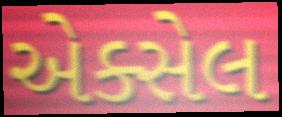
એક્સેલ